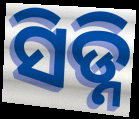
ସିଡ୍ନି